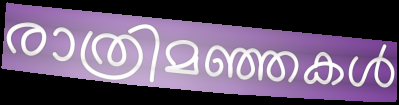
രാത്രിമഞ്ഞകൾ